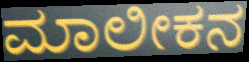
ಮಾಲೀಕನ